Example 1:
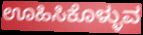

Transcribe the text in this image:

ಊಹಿಸಿಕೊಳ್ಳುವ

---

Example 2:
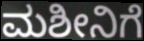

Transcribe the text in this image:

ಮಶೀನಿಗೆ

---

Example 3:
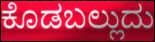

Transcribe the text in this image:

ಕೊಡಬಲ್ಲುದು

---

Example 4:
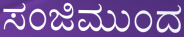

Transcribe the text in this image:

ಸಂಜಿಮುಂದ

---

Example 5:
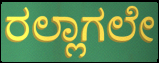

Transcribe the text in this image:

ರಲ್ಲಾಗಲೇ